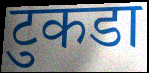
टुकडा